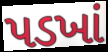
પડખાં